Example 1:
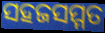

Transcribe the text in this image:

ସହଜସମ୍ମତ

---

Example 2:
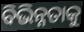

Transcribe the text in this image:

ବିଭିନ୍ନତାକୁ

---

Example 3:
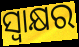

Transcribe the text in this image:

ସ୍ଵାକ୍ଷର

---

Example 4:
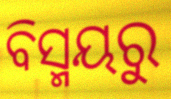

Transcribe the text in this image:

ବିସ୍ମୟରୁ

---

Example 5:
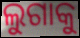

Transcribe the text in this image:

ଲୁଗାକୁ